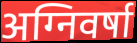
अग्निवर्षा